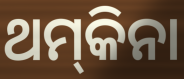
ଥମ୍‍କିନା